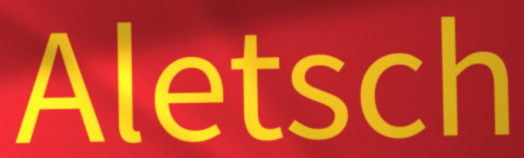
Aletsch